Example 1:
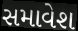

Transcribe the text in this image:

સમાવેશ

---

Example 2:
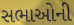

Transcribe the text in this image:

સભાઓની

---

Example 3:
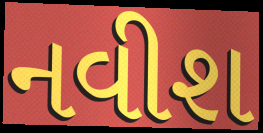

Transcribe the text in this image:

નવીશ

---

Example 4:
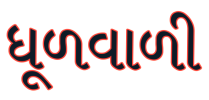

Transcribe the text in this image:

ધૂળવાળી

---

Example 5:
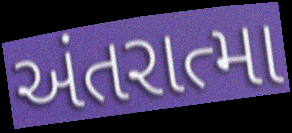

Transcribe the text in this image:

અંતરાત્મા